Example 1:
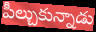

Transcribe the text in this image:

పీల్చుకున్నాడు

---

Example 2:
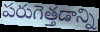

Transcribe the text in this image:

పరుగెత్తడాన్ని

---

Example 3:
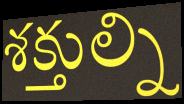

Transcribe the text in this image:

శక్తుల్ని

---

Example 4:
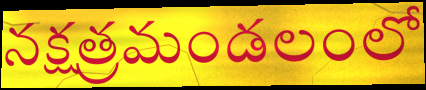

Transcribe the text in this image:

నక్షత్రమండలంలో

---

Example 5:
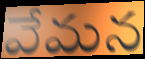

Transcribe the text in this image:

వేమన